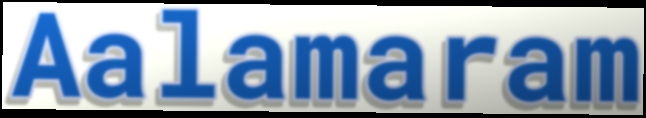
Aalamaram